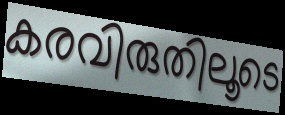
കരവിരുതിലൂടെ